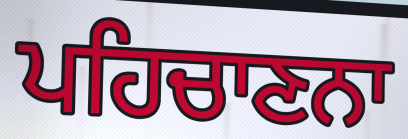
ਪਹਿਚਾਣਨਾ